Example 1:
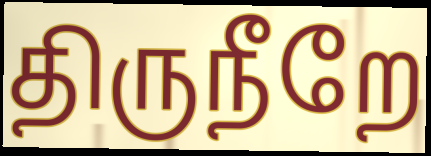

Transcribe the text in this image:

திருநீறே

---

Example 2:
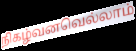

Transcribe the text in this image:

நிகழ்வனவெல்லாம்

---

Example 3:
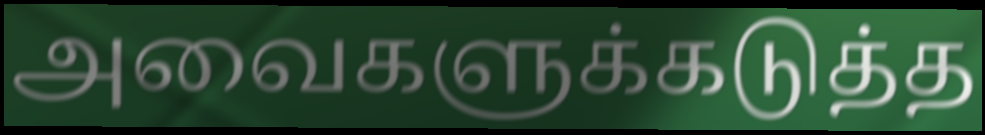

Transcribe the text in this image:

அவைகளுக்கடுத்த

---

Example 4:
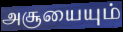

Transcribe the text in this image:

அசூயையும்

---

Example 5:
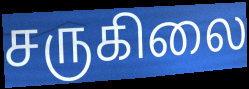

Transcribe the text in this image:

சருகிலை